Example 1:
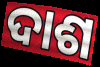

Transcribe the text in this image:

ଦାଶ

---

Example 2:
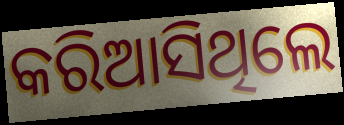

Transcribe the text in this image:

କରିଆସିଥିଲେ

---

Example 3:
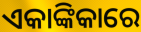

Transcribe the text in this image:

ଏକାଙ୍କିକାରେ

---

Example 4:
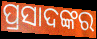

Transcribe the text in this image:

ପ୍ରସାଦଙ୍କର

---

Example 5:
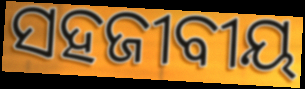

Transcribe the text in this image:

ସହଜୀବୀୟ